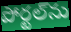
పోర్టల్‌ను